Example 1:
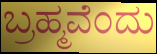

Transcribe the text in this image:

ಬ್ರಹ್ಮವೆಂದು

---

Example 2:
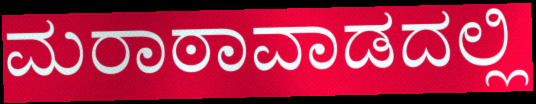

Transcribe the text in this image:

ಮರಾಠಾವಾಡದಲ್ಲಿ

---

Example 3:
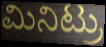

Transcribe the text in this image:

ಮಿನಿಟ್ರು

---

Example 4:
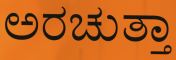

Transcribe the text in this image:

ಅರಚುತ್ತಾ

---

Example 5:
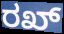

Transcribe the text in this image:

ರಖ್